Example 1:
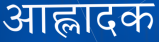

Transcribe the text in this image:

आह्लादक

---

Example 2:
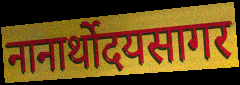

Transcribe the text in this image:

नानार्थोदयसागर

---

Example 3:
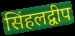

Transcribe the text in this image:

सिंहलद्वीप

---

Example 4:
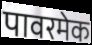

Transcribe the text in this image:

पावरमेक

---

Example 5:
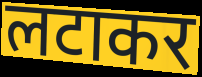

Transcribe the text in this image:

लटाकर